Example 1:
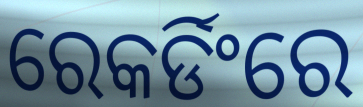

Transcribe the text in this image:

ରେକର୍ଡିଂରେ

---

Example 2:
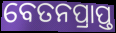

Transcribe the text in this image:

ବେତନପ୍ରାପ୍ତ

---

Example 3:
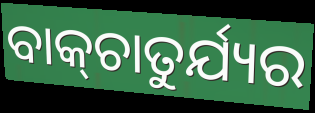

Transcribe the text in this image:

ବାକ୍‍ଚାତୁର୍ଯ୍ୟର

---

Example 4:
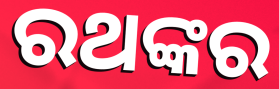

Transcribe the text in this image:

ରଥଙ୍କର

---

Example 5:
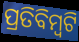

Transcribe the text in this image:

ପ୍ରତିବିମ୍ବଟି